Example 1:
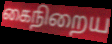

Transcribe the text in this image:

கைநிறைய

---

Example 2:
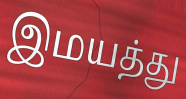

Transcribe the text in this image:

இமயத்து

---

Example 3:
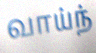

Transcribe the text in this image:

வாய்ந்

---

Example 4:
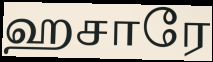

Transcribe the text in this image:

ஹசாரே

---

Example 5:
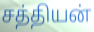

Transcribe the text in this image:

சத்தியன்